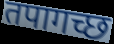
तपागच्छ